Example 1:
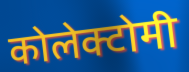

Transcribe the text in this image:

कोलेक्टोमी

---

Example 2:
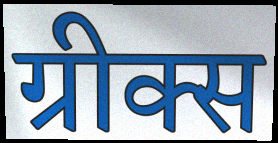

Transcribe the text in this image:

ग्रीक्स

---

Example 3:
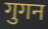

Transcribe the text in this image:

गुगन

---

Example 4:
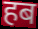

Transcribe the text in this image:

हब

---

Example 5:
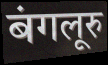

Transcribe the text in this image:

बंगलूरु